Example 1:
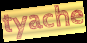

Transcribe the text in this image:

tyache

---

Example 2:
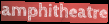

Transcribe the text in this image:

amphitheatre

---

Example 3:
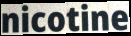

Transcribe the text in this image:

nicotine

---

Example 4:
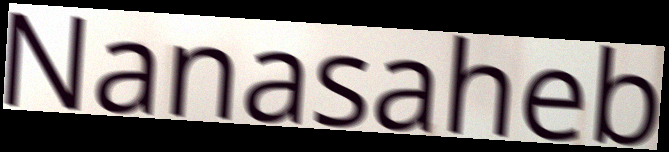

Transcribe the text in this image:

Nanasaheb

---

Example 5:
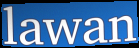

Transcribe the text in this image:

lawan